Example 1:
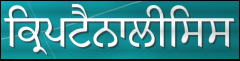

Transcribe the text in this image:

ਕ੍ਰਿਪਟੈਨਾਲੀਸਿਸ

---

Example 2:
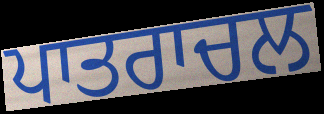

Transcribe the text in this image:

ਪਾਤਰਾਚਲ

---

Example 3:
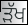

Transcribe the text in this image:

ੜੱਖ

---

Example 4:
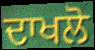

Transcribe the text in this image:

ਦਾਖਲੋ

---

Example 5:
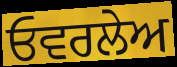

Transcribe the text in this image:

ਓਵਰਲੇਅ